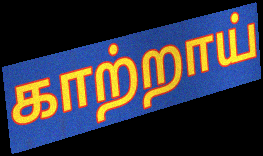
காற்றாய்